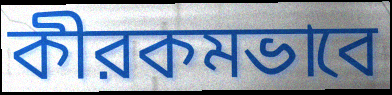
কীরকমভাবে